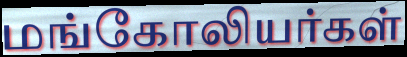
மங்கோலியர்கள்